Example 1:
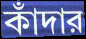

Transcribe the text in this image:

কাঁদার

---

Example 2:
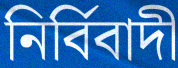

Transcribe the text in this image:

নির্বিবাদী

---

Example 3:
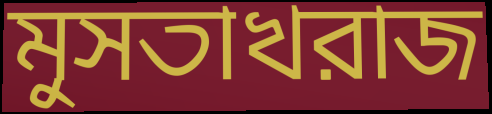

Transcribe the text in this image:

মুসতাখরাজ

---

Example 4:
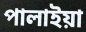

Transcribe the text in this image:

পালাইয়া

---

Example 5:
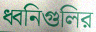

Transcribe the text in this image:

ধ্বনিগুলির